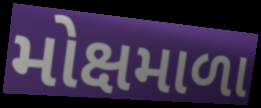
મોક્ષમાળા